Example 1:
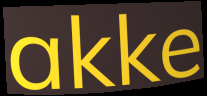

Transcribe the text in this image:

akke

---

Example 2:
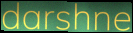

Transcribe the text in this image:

darshne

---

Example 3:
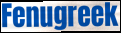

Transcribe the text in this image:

Fenugreek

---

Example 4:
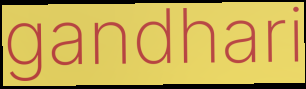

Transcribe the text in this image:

gandhari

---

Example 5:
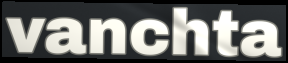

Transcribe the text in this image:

vanchta